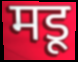
मडू